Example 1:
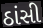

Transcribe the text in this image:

ઠાંસી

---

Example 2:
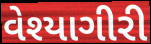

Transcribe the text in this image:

વેશ્યાગીરી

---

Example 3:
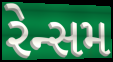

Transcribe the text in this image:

રેન્સમ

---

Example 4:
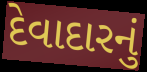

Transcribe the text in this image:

દેવાદારનું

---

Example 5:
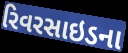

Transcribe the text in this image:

રિવરસાઇડના